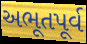
અભૂતપૂર્વ